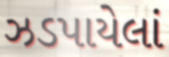
ઝડપાયેલાં